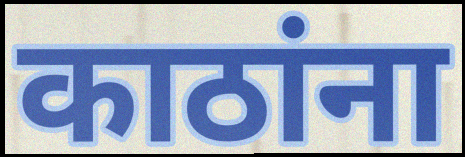
काठांना